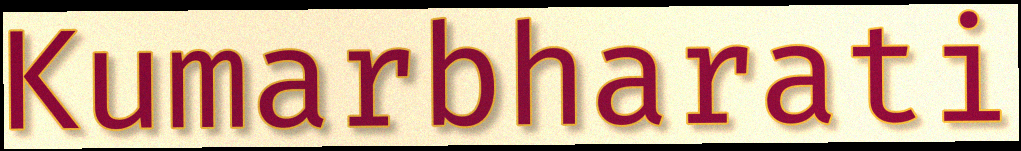
Kumarbharati